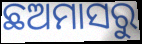
ଛଅମାସରୁ